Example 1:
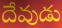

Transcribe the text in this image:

దేవుడు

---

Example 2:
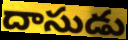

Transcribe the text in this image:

దాసుడు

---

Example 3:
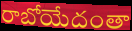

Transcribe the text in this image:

రాబోయేదంతా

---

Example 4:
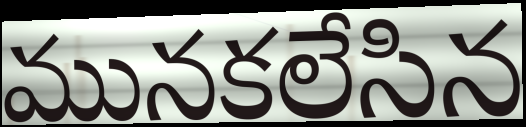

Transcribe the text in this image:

మునకలేసిన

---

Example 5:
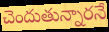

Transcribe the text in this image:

చెందుతున్నారనే